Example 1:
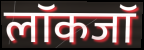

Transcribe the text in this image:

लॉकजॉ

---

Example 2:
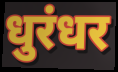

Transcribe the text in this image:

धुरंधर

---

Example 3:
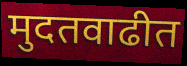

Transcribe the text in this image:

मुदतवाढीत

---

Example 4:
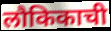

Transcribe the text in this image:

लौकिकाची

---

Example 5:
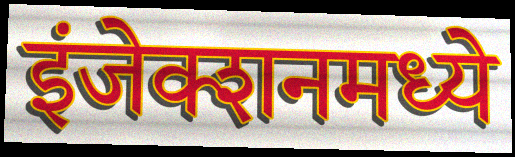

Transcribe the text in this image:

इंजेक्शनमध्ये